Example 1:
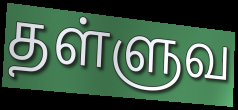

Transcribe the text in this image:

தள்ளுவ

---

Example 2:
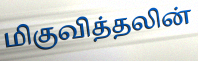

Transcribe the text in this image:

மிகுவித்தலின்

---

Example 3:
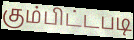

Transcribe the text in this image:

கும்பிட்டபடி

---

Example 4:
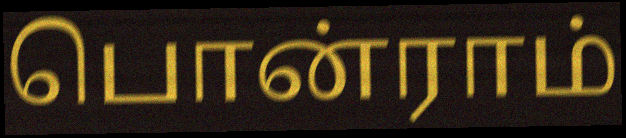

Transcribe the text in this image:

பொன்ராம்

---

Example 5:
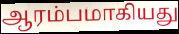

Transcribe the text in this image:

ஆரம்பமாகியது